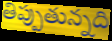
తిప్పుతున్నది